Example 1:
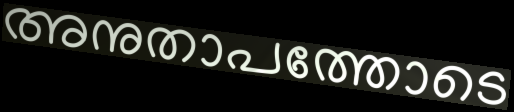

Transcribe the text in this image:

അനുതാപത്തോടെ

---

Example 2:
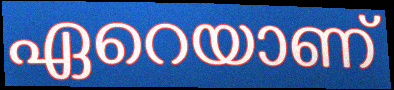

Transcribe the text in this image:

ഏറെയാണ്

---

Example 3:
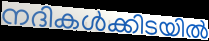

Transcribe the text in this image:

നദികൾക്കിടയിൽ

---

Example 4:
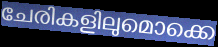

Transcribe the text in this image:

ചേരികളിലുമൊക്കെ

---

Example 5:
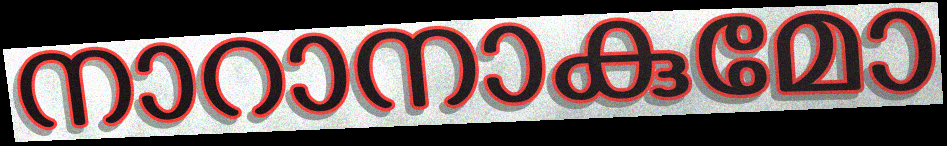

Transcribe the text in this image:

നാറാനാകുമോ